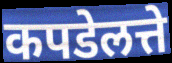
कपडेलत्ते